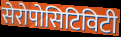
सेरोपोसिटिविटी